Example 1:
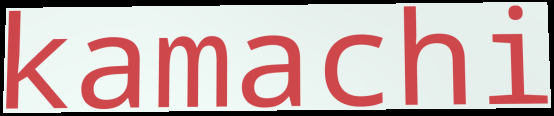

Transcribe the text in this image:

kamachi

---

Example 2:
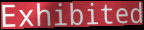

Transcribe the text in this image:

Exhibited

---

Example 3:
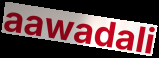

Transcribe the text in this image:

aawadali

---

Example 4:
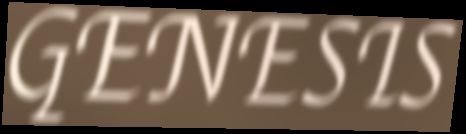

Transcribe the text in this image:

GENESIS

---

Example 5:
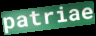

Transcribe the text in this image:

patriae